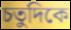
চতুদিকে